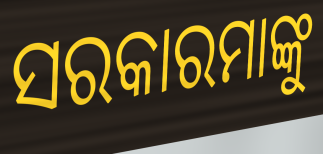
ସରକାରମାଙ୍କୁ